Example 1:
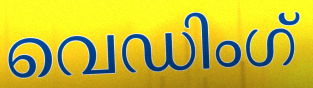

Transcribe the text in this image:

വെഡിംഗ്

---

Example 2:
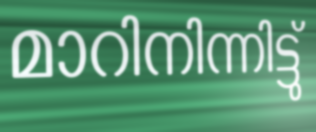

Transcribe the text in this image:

മാറിനിന്നിട്ടു്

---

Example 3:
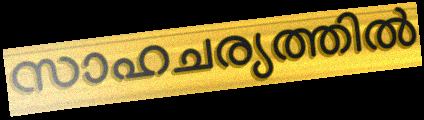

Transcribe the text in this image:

സാഹചര്യത്തിൽ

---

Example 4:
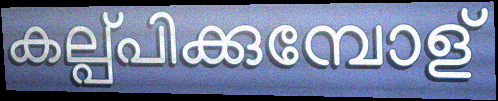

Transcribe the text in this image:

കല്പ്പിക്കുമ്പോള്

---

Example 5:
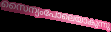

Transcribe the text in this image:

സൈന്യംപോലെയാകുന്നു